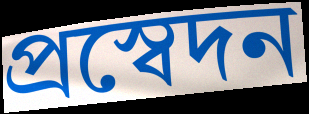
প্রস্বেদন